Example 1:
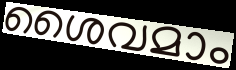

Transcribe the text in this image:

ശൈവമാം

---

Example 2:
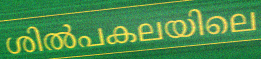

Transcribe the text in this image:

ശിൽപകലയിലെ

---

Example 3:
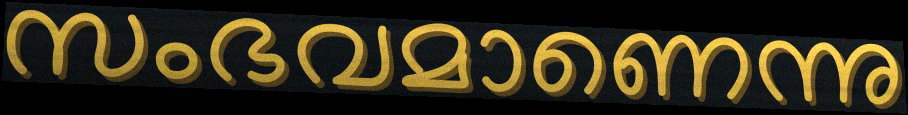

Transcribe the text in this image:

സംഭവമാണെന്നു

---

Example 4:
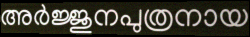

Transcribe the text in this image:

അർജ്ജുനപുത്രനായ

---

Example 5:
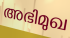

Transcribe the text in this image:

അഭിമുഖ